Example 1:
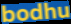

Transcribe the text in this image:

bodhu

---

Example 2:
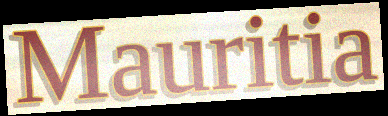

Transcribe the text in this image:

Mauritia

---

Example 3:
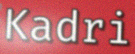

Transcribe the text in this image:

Kadri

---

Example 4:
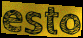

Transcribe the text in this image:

esto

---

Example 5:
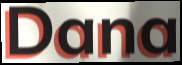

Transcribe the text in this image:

Dana